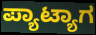
ಪ್ಯಾಟ್ಯಾಗ